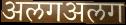
अलगअलग